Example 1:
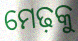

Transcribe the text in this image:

ମେଢ଼କୁ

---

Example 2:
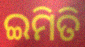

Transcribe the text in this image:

ଇମିତି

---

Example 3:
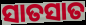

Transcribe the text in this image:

ସାତସାତ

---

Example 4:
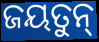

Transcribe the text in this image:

ଜୟତୁନ୍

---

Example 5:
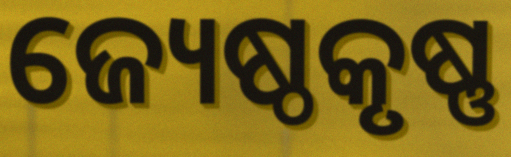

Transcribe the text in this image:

ଜ୍ୟେଷ୍ଠକୃଷ୍ଣ